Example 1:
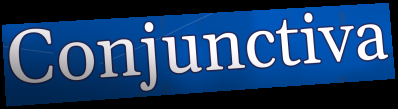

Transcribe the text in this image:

Conjunctiva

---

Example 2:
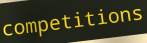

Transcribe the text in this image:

competitions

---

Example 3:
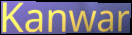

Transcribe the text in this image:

Kanwar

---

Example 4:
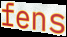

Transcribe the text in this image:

fens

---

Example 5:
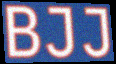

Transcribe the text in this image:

BJJ